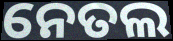
ନେତଲ